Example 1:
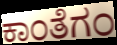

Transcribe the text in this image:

ಕಾಂತೆಗಂ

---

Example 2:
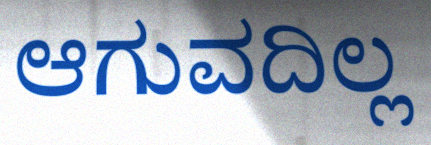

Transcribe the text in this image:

ಆಗುವದಿಲ್ಲ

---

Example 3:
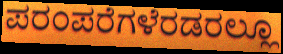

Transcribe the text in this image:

ಪರಂಪರೆಗಳೆರಡರಲ್ಲೂ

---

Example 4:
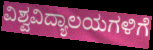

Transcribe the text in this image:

ವಿಶ್ವವಿದ್ಯಾಲಯಗಳಿಗೆ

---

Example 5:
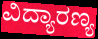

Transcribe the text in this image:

ವಿದ್ಯಾರಣ್ಯ